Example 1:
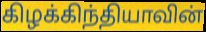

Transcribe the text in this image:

கிழக்கிந்தியாவின்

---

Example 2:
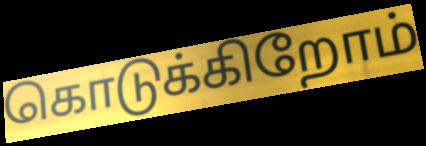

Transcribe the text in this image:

கொடுக்கிறோம்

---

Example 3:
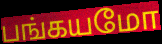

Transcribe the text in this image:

பங்கயமோ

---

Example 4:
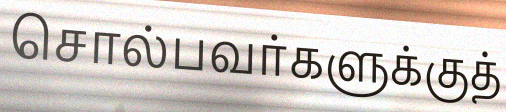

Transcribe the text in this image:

சொல்பவர்களுக்குத்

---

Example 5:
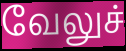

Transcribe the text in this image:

வேலுச்